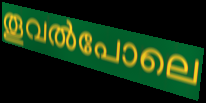
തൂവൽപോലെ